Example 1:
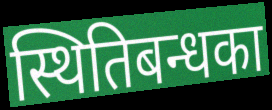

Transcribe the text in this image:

स्थितिबन्धका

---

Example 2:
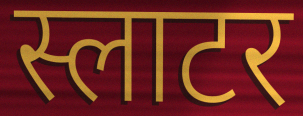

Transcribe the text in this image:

स्लाटर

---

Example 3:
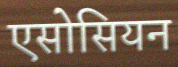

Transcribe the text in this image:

एसोसियन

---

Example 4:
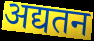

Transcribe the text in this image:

अद्यतन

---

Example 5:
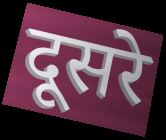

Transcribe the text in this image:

दूसरे